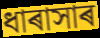
ধাৰাসাৰ